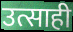
उत्साही